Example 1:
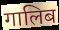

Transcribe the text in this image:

गालिब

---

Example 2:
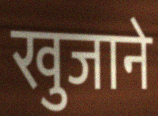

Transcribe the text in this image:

खुजाने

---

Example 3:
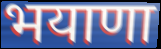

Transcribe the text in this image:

भयाणा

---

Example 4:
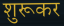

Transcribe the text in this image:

शुरूकर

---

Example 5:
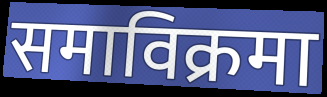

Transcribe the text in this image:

समाविक्रमा